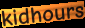
kidhours